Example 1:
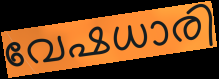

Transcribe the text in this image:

വേഷധാരി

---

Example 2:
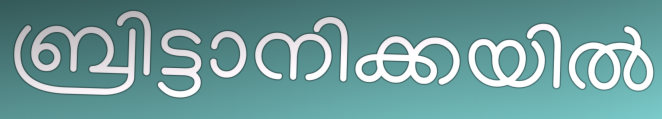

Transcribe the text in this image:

ബ്രിട്ടാനിക്കയിൽ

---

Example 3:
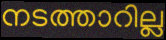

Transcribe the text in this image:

നടത്താറില്ല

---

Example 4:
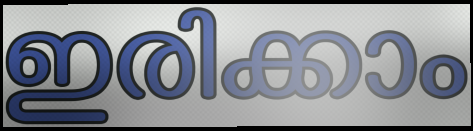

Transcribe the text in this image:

ഇരിക്കാം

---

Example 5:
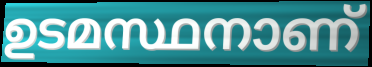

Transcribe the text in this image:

ഉടമസ്ഥനാണ്